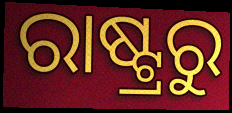
ରାଷ୍ଟ୍ରରୁ